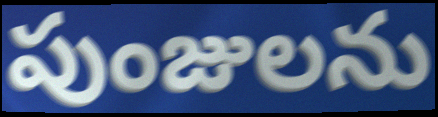
పుంజులను